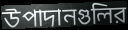
উপাদানগুলির